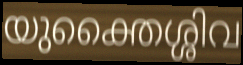
യുക്തൈശ്ശിവ